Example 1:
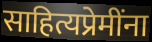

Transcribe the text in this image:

साहित्यप्रेमींना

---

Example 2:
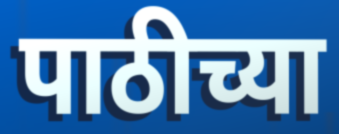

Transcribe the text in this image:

पाठीच्या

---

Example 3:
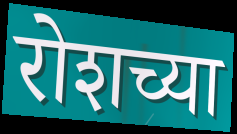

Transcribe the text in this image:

रोशच्या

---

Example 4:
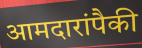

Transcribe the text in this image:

आमदारांपैकी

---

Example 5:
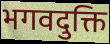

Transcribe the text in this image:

भगवदुक्ति